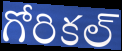
గోరికల్